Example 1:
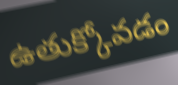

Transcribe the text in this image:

ఉతుక్కోవడం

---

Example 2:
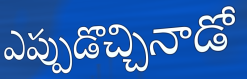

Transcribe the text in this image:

ఎప్పుడొచ్చినాడో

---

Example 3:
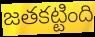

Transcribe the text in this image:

జతకట్టింది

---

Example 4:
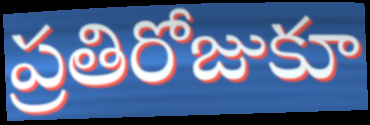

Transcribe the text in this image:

ప్రతిరోజుకూ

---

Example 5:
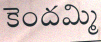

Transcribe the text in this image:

కెందమ్మి